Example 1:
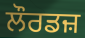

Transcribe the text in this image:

ਲੌਰਡਜ਼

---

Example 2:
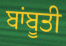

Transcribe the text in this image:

ਬਾਂਬੂਤੀ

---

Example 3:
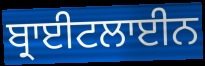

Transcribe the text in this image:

ਬ੍ਰਾਈਟਲਾਈਨ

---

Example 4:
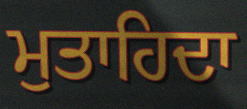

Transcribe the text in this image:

ਮੁਤਾਹਿਦਾ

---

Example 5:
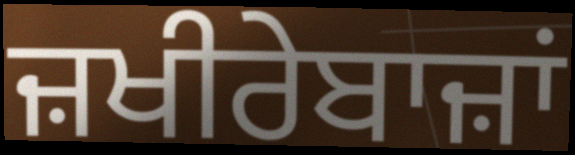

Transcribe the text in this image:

ਜ਼ਖੀਰੇਬਾਜ਼ਾਂ